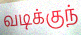
வடிக்குந்